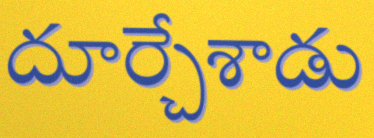
దూర్చేశాడు